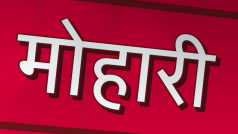
मोहारी